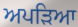
ਅਪੜਿਆ